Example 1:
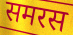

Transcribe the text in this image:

समरस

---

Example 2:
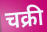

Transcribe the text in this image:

चक्री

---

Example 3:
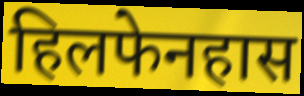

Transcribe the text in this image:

हिलफेनहास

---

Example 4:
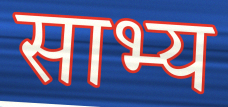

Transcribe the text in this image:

साभ्य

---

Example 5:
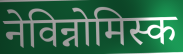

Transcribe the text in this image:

नेविन्नोमिस्क